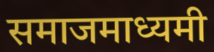
समाजमाध्यमी